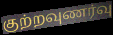
குற்றவுணர்வு